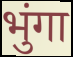
भुंगा